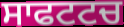
ਸਾਫਟਟਚ